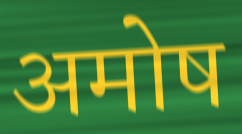
अमोष